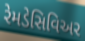
રેમડેસિવિઅર